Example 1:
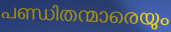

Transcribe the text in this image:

പണ്ഡിതന്മാരെയും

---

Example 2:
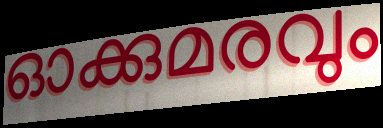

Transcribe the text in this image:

ഓക്കുമരവും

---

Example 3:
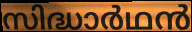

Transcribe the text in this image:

സിദ്ധാർഥൻ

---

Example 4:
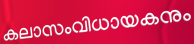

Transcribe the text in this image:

കലാസംവിധായകനും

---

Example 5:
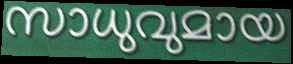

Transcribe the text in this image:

സാധുവുമായ